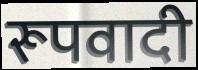
रूपवादी